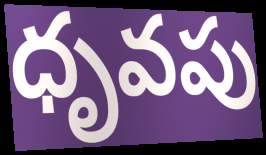
ధృవపు